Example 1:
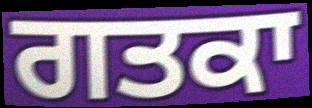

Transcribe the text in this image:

ਗਤਕਾ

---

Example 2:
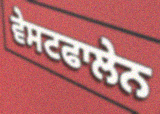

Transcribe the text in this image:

ਵੇਸਟਫਾਲੇਨ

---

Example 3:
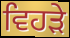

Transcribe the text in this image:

ਵਿਹੜੇ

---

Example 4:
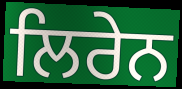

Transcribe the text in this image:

ਲਿਰੇਨ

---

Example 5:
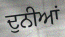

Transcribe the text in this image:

ਦੁਨੀਆਂ